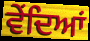
ਵੇਂਦਿਆਂ